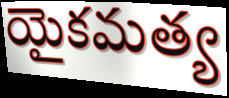
యైకమత్య